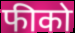
फीको